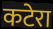
कटेरा